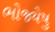
ભોજ્યેષુ